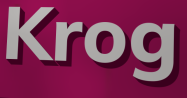
Krog